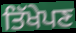
ਤਿੱਖੇਪਣ